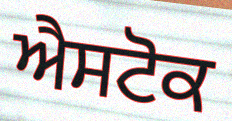
ਐਸਟੋਕ